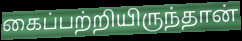
கைப்பற்றியிருந்தான்